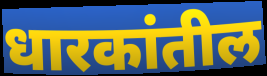
धारकांतील